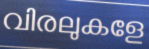
വിരലുകളേ